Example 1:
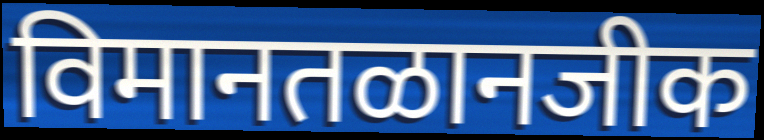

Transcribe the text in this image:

विमानतळानजीक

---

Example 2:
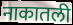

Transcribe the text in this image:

नाकातली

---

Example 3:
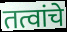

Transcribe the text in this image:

तत्वांचे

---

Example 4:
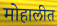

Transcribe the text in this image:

मोहालीत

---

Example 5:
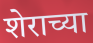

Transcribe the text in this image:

शेराच्या